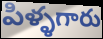
పిళ్ళగారు